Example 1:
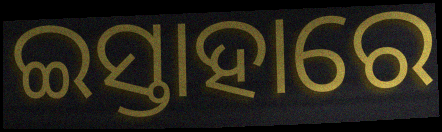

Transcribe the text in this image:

ଇସ୍ତାହାରେ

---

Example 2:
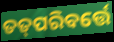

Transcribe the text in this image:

ତତ୍‌ପରିବର୍ତ୍ତେ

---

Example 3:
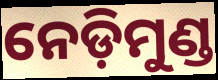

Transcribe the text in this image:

ନେଡ଼ିମୁଣ୍ଡ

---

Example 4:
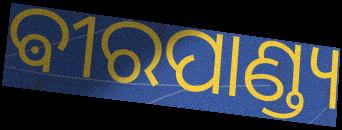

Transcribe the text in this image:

ଵୀରପାଣ୍ଡ୍ୟ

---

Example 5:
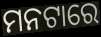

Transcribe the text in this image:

ମନଟାରେ